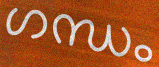
ഗന്ധം